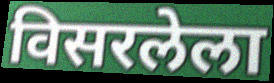
विसरलेला